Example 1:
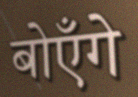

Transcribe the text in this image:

बोएँगे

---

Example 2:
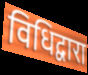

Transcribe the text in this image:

विधिद्वारा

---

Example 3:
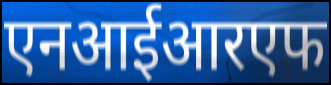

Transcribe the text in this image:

एनआईआरएफ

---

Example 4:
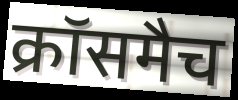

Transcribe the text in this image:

क्रॉसमैच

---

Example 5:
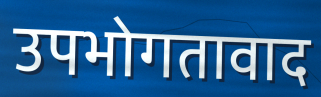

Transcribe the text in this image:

उपभोगतावाद